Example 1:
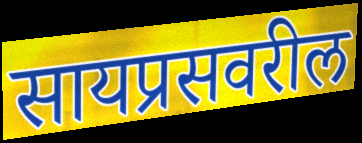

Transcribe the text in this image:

सायप्रसवरील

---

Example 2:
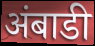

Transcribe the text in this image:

अंबाडी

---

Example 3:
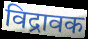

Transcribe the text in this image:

विद्रावक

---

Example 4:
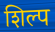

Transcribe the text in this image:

शिल्प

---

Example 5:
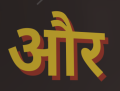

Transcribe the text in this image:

और